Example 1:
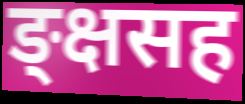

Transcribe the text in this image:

ङ्क्षसह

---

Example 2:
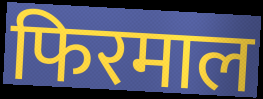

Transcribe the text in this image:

फिरमाल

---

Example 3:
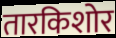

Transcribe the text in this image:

तारकिशोर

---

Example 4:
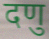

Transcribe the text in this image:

दणु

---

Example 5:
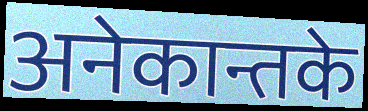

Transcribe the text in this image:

अनेकान्तके